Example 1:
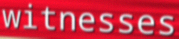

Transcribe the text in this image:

witnesses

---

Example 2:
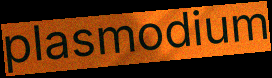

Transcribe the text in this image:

plasmodium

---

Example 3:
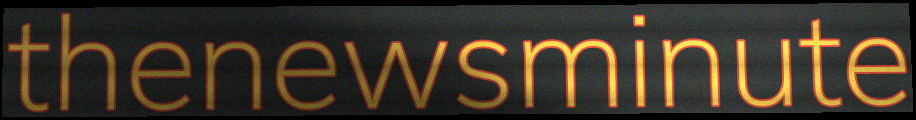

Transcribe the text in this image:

thenewsminute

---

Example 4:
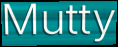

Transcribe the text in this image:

Mutty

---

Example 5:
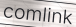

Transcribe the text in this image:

comlink